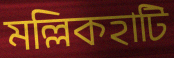
মল্লিকহাটি